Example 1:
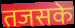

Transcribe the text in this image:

तजसके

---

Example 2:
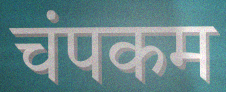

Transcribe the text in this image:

चंपकम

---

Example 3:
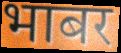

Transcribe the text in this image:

भाबर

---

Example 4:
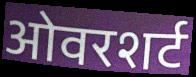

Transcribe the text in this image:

ओवरशर्ट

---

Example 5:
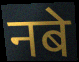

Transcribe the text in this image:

नबे